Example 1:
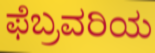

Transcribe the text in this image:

ಫೆಬ್ರವರಿಯ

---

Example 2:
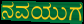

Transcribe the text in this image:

ನವಯುಗ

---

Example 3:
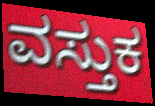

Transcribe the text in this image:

ವಸ್ತುಕ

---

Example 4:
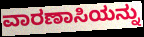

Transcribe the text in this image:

ವಾರಣಾಸಿಯನ್ನು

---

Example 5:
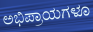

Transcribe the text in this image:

ಅಭಿಪ್ರಾಯಗಳೂ